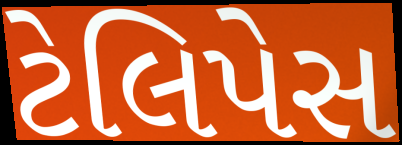
ટેલિપેસ